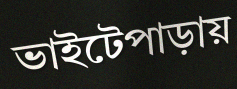
ভাইটেপাড়ায়